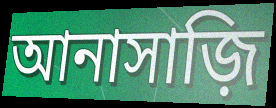
আনাসাজ়ি